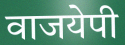
वाजयेपी